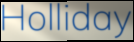
Holliday